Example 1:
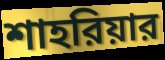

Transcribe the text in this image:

শাহরিয়ার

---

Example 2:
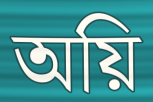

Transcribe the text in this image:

অয়ি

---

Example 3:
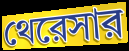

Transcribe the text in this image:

থেরেসার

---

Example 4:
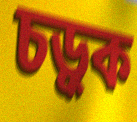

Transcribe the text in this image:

চড়ুক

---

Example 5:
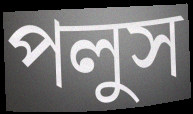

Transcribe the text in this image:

পলুস